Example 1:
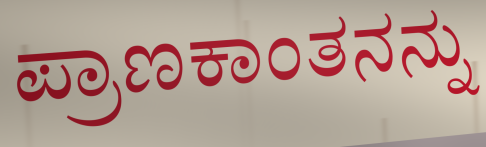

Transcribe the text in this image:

ಪ್ರಾಣಕಾಂತನನ್ನು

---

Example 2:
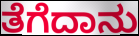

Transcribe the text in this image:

ತೆಗೆದಾನು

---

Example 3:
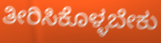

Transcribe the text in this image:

ತೀರಿಸಿಕೊಳ್ಳಬೇಕು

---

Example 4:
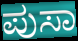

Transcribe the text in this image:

ಪುಸಾ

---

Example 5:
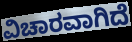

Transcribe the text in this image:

ವಿಚಾರವಾಗಿದೆ